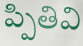
ప్పితివి